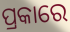
ପ୍ରକାରେ